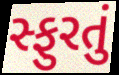
સ્ફુરતું